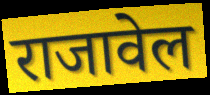
राजावेल